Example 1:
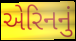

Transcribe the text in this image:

એરિનનું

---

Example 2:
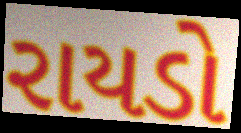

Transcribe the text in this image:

રાયડો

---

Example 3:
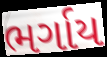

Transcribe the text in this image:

ભર્ગાય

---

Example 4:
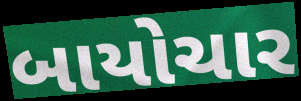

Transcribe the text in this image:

બાયોચાર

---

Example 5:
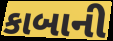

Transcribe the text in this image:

કાબાની